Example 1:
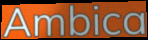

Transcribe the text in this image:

Ambica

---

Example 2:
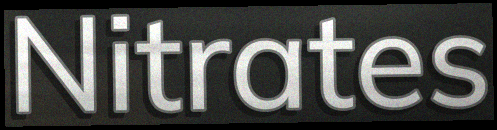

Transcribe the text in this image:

Nitrates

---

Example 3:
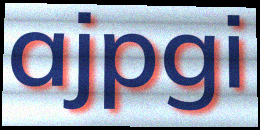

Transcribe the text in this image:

ajpgi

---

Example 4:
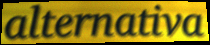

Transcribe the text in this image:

alternativa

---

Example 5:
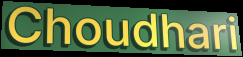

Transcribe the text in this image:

Choudhari